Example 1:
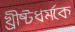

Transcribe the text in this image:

খ্রীষ্টধর্মকে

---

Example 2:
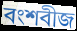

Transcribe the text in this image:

বংশবীজ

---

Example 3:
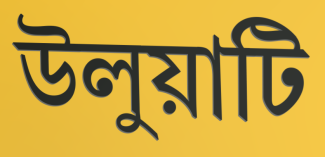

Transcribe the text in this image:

উলুয়াটি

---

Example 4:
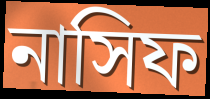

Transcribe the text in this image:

নাসিফ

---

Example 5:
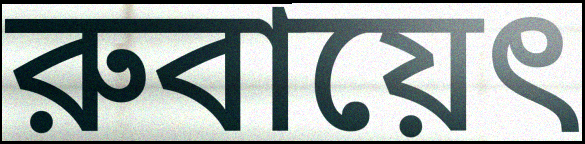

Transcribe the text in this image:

রুবায়েৎ